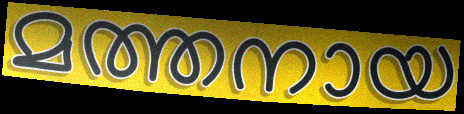
മത്തനായ